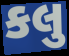
કલુ